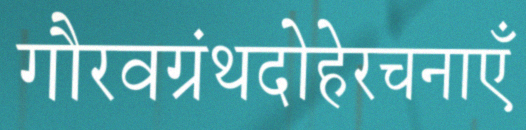
गौरवग्रंथदोहेरचनाएँ